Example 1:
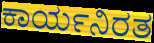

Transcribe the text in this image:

ಕಾರ್ಯನಿರತ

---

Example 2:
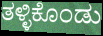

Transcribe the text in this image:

ತಳ್ಳಿಕೊಂಡು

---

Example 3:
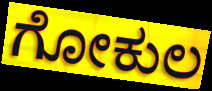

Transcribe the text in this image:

ಗೋಕುಲ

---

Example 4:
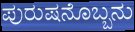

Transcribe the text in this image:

ಪುರುಷನೊಬ್ಬನು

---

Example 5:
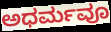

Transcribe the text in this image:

ಅಧರ್ಮವೂ